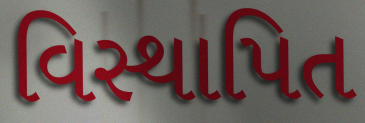
વિસ્થાપિત